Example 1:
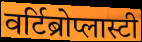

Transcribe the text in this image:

वर्टिब्रोप्लास्टी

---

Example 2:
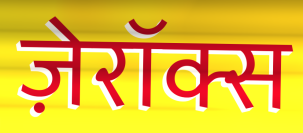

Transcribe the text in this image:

ज़ेरॉक्स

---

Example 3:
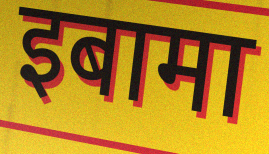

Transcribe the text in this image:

इबामा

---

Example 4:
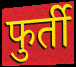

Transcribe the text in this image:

फुर्ती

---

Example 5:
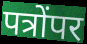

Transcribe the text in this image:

पत्रोंपर